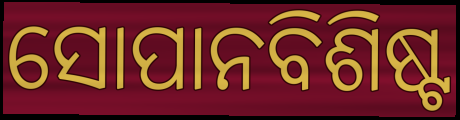
ସୋପାନବିଶିଷ୍ଟ